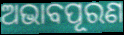
ଅଭାବପୂରଣ